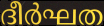
ദീർഘത